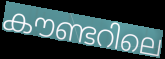
കൗണ്ടറിലെ